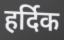
हर्दिक